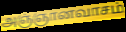
அஞ்ஞானவாசம்